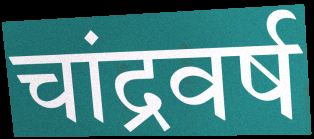
चांद्रवर्ष